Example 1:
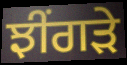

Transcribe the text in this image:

ਝੀਂਗੜੇ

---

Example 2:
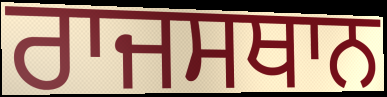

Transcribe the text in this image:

ਰਾਜਸਥਾਨ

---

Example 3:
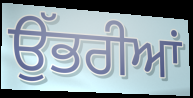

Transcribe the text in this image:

ਉੱਭਰੀਆਂ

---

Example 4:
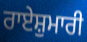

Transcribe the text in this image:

ਰਾਏਸ਼ੁਮਾਰੀ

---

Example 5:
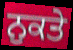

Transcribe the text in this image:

ਨੁਕਤੇ